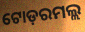
ଟୋଡ଼ରମଲ୍ଲ